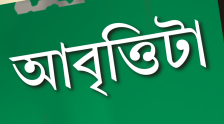
আবৃত্তিটা